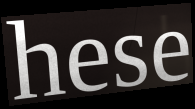
hese